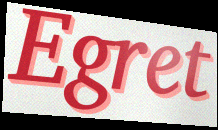
Egret